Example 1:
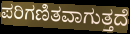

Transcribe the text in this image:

ಪರಿಗಣಿತವಾಗುತ್ತದೆ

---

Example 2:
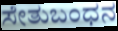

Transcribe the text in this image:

ಸೇತುಬಂಧನ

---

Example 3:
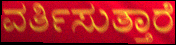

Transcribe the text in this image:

ವರ್ತಿಸುತ್ತಾರೆ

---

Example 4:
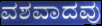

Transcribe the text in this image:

ವಶವಾದವು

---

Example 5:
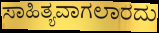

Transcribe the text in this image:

ಸಾಹಿತ್ಯವಾಗಲಾರದು